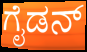
ಗೈಡನ್